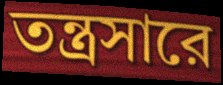
তন্ত্রসারে